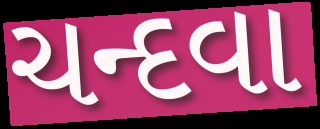
ચન્દવા